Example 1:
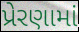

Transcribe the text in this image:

પ્રેરણામાં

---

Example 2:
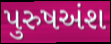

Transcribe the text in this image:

પુરુષઅંશ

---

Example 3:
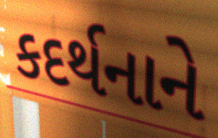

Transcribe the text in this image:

કદર્થનાને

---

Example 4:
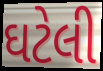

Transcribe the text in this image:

ઘટેલી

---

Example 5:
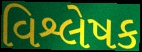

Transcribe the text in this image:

વિશ્લેષક